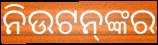
ନିଉଟନ୍‌ଙ୍କର